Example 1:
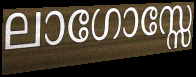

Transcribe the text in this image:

ലാഗോസ്സേ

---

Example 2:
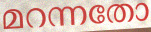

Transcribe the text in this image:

മറന്നതോ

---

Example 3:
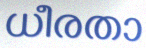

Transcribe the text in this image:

ധീരതാ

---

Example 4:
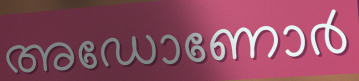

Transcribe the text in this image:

അഡോണോർ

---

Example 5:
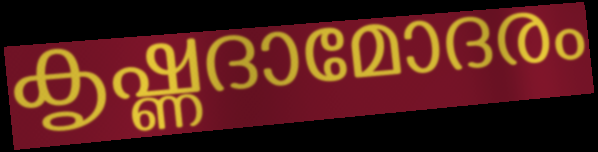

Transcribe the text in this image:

കൃഷ്ണദാമോദരം